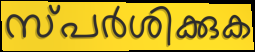
സ്പർശിക്കുക